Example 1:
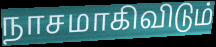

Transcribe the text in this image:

நாசமாகிவிடும்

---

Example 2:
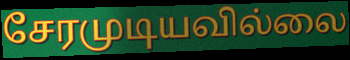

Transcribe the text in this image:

சேரமுடியவில்லை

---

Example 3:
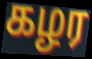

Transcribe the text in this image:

கழர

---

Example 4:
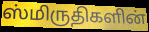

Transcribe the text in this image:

ஸ்மிருதிகளின்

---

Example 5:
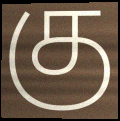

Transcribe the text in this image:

கு